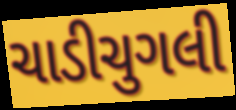
ચાડીચુગલી